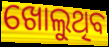
ଖୋଲୁଥିବ